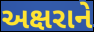
અક્ષરાને